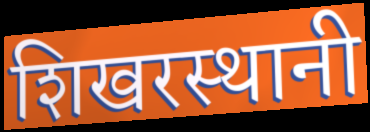
शिखरस्थानी